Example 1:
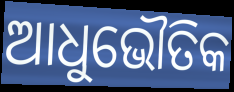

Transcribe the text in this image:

ଆଧୁଭୌତିକ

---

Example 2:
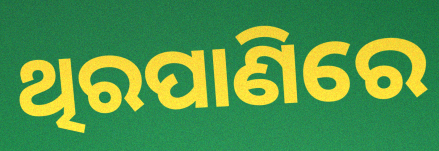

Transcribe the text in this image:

ଥିରପାଣିରେ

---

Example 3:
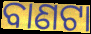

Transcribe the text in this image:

ବାଣଟା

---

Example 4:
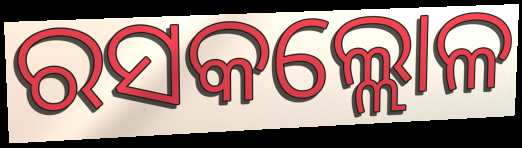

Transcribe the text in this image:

ରସକଲ୍ଲୋଳ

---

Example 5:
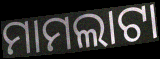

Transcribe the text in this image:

ମାମଲାଟା